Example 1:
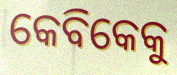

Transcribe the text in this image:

କେବିକେକୁ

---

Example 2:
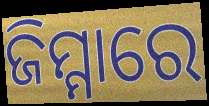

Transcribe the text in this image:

ଜିମ୍ମାରେ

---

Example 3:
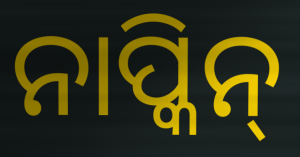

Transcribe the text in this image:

ନାପ୍କିନ୍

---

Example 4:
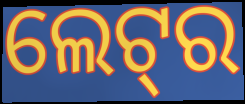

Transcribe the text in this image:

ଲେଟ୍‌ର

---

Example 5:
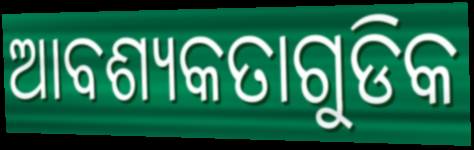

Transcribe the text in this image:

ଆବଶ୍ୟକତାଗୁଡିକ